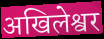
अखिलेश्वर